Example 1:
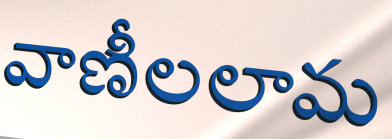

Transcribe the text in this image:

వాణీలలామ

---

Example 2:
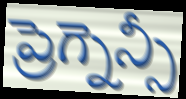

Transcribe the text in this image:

ప్రెగ్నెన్సీ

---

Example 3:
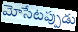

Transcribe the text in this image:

మోసేటప్పుడు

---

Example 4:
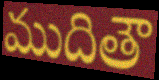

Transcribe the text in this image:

ముదితౌ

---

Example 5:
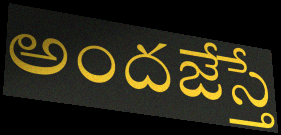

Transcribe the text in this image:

అందజేస్తే